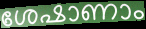
ശേഷാണാം